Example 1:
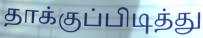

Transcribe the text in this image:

தாக்குப்பிடித்து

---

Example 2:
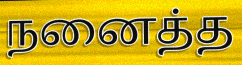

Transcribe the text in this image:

நனைத்த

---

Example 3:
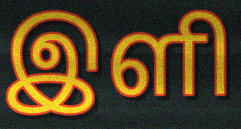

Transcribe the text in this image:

இளி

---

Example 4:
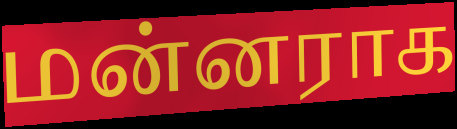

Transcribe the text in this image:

மன்னராக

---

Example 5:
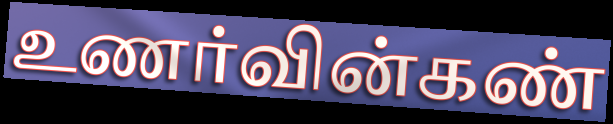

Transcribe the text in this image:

உணர்வின்கண்